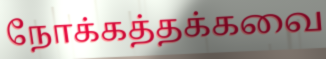
நோக்கத்தக்கவை